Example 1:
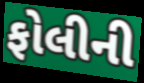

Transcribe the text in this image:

ફોલીની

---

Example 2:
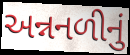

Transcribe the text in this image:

અન્નનળીનું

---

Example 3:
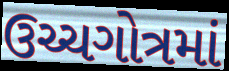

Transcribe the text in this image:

ઉચ્ચગોત્રમાં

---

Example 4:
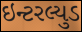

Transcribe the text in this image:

ઇન્ટરલ્યુડ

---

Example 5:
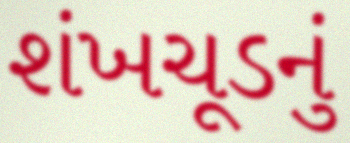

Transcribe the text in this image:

શંખચૂડનું